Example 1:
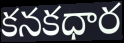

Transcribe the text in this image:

కనకధార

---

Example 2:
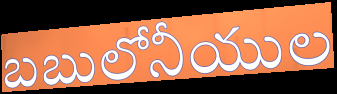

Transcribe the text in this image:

బబులోనీయుల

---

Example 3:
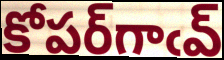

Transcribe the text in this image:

కోపర్‌గాఁవ్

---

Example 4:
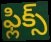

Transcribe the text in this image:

ఫ్లిక్స్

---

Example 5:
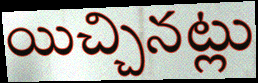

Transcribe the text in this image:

యిచ్చినట్లు